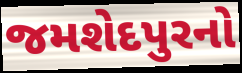
જમશેદપુરનો